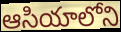
ఆసియాలోని